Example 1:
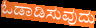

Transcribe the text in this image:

ಓಡಾಡಿಸುವುದು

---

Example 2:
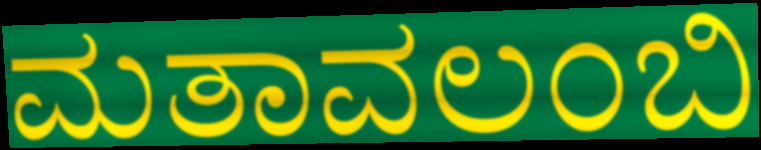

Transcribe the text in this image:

ಮತಾವಲಂಬಿ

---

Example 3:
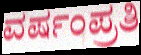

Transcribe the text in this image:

ವರ್ಷಂಪ್ರತಿ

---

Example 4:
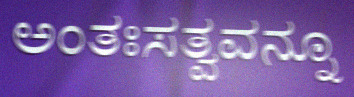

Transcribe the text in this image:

ಅಂತಃಸತ್ವವನ್ನೂ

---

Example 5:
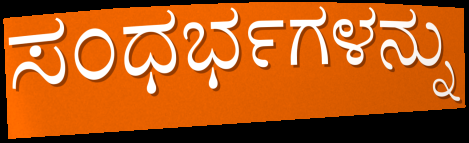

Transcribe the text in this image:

ಸಂಧರ್ಭಗಳನ್ನು